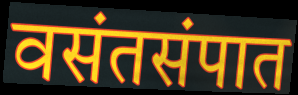
वसंतसंपात